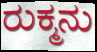
ರುಕ್ಮನು